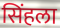
सिंहला